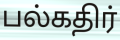
பல்கதிர்